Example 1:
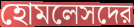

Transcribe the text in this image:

হোমলেসদের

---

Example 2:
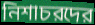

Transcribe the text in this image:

নিশাচরদের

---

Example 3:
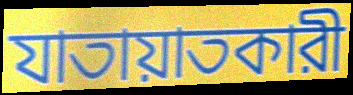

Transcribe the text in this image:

যাতায়াতকারী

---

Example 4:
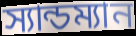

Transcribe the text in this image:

স্যান্ডম্যান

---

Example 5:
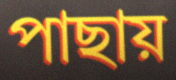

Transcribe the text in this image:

পাছায়